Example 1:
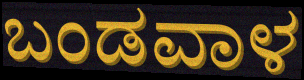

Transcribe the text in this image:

ಬಂಡವಾಳ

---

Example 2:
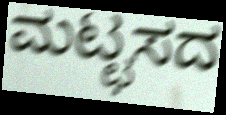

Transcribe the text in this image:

ಮಟ್ಟಸದ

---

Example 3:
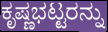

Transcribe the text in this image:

ಕೃಷ್ಣಭಟ್ಟರನ್ನು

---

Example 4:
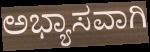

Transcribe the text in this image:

ಅಭ್ಯಾಸವಾಗಿ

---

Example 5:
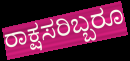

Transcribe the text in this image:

ರಾಕ್ಷಸರಿಬ್ಬರೂ